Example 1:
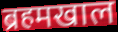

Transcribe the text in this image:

ब्रहमखाल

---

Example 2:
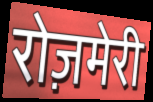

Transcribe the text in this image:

रोज़मेरी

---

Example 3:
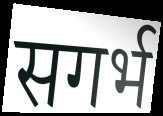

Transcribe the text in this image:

सगर्भ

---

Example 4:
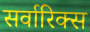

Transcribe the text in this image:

सर्वारिक्स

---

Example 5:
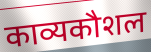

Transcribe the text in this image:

काव्यकौशल